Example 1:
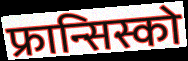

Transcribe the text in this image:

फ्रान्सिस्को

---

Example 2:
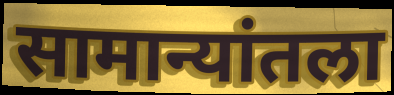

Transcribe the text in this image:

सामान्यांतला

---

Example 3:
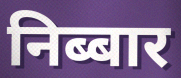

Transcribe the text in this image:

निब्बार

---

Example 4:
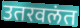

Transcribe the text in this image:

उतरवलंत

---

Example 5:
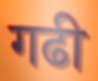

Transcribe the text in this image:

गढी